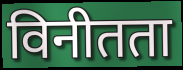
विनीतता